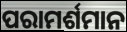
ପରାମର୍ଶମାନ